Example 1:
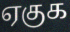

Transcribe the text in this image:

ஏகுக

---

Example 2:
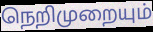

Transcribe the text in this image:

நெறிமுறையும்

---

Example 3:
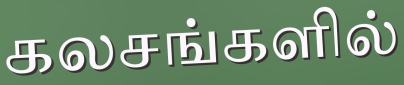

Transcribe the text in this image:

கலசங்களில்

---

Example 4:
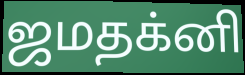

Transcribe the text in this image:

ஜமதக்னி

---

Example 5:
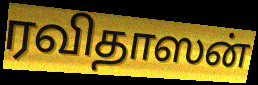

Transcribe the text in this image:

ரவிதாஸன்